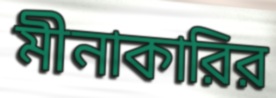
মীনাকারির